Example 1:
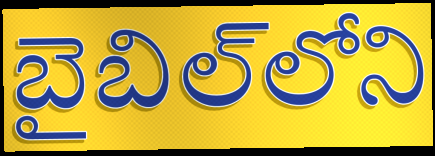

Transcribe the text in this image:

బైబిల్‌లోని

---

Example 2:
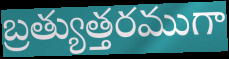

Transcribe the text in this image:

బ్రత్యుత్తరముగా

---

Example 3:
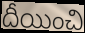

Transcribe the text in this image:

దీయించి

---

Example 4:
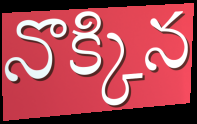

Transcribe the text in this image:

నొక్కిన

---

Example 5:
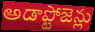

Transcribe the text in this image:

అడాప్టోజెన్లు